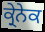
ਕ੍ਰੇਨੇਕ